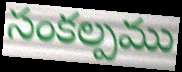
సంకల్పము